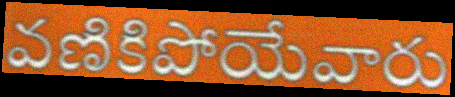
వణికిపోయేవారు